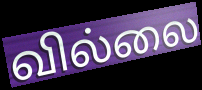
வில்லை